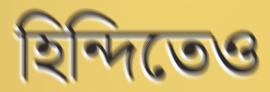
হিন্দিতেও